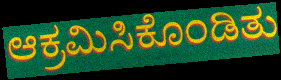
ಆಕ್ರಮಿಸಿಕೊಂಡಿತು